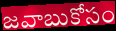
జవాబుకోసం